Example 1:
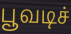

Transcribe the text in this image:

பூவடிச்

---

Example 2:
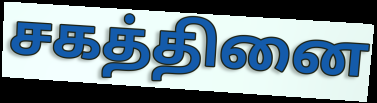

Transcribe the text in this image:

சகத்தினை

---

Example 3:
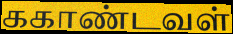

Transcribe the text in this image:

ககாண்டவள்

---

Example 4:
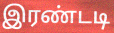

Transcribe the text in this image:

இரண்டடி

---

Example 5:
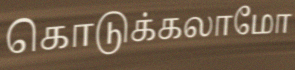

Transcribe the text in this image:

கொடுக்கலாமோ